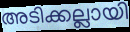
അടിക്കല്ലായി